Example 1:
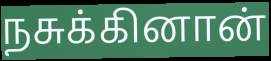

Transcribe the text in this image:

நசுக்கினான்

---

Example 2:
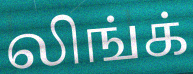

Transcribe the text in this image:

லிங்க்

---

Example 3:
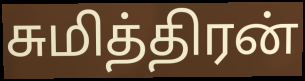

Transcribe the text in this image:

சுமித்திரன்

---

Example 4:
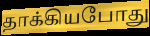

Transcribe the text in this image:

தாக்கியபோது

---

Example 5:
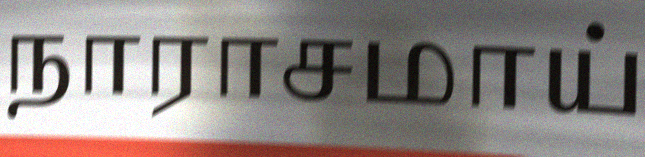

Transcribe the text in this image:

நாராசமாய்